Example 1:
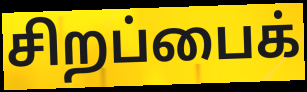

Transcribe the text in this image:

சிறப்பைக்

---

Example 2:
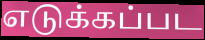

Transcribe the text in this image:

எடுக்கப்பட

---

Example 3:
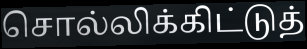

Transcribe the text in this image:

சொல்லிக்கிட்டுத்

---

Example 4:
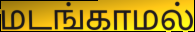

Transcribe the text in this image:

மடங்காமல்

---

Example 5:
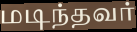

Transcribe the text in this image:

மடிந்தவர்